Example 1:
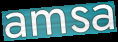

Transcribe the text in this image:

amsa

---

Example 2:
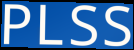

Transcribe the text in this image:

PLSS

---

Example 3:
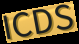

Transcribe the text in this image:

ICDS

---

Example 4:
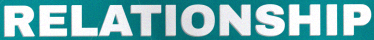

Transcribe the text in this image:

RELATIONSHIP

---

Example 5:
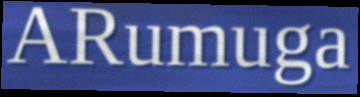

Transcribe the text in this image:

ARumuga